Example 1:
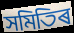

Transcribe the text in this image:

সমিতিৰ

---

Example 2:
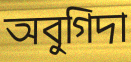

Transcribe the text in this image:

অবুগিদা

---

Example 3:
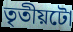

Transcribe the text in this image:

তৃতীয়টো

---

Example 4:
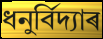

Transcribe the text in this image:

ধনুৰ্বিদ্যাৰ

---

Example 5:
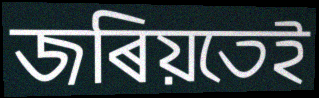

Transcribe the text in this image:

জৰিয়তেই